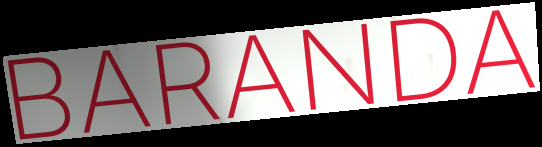
BARANDA